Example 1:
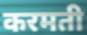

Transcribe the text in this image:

करमती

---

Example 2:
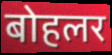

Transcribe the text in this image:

बोहलर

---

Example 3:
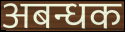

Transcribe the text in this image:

अबन्धक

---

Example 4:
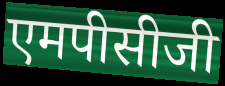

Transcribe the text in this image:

एमपीसीजी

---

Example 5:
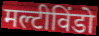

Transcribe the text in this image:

मल्टीविंडो